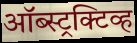
ऑब्स्ट्रक्टिव्ह